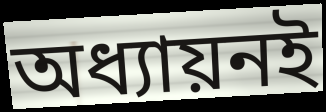
অধ্যায়নই